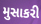
મુસાકરી